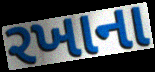
રખાના